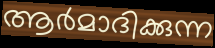
ആർമാദിക്കുന്ന